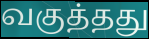
வகுத்தது